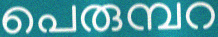
പെരുമ്പറ